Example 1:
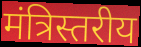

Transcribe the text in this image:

मंत्रिस्तरीय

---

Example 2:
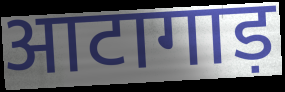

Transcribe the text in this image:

आटागाड़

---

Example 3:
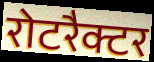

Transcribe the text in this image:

रोटरैक्टर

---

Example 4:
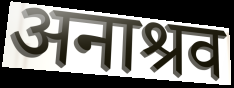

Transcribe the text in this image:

अनाश्रव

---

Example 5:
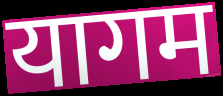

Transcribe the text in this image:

यागम